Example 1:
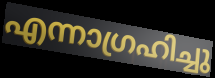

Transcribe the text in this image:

എന്നാഗ്രഹിച്ചു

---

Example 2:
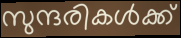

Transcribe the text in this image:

സുന്ദരികൾക്ക്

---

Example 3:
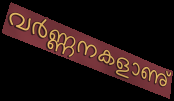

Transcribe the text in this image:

വർണ്ണനകളാണു്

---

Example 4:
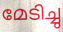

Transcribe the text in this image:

മേടിച്ചു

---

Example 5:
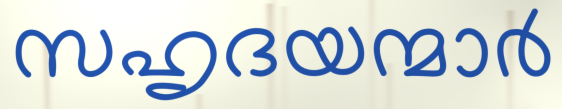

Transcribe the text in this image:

സഹൃദയന്മാർ